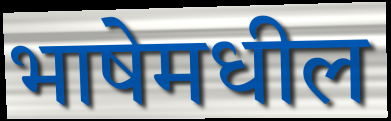
भाषेमधील